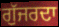
ਗੁੱਜਰਦਾ